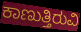
ಕಾಣುತ್ತಿರುವಿ